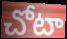
చోటా